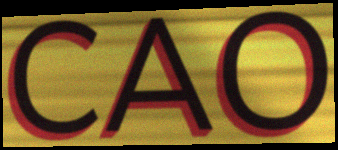
CAO